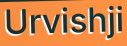
Urvishji